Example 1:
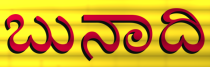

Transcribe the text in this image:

ಬುನಾದಿ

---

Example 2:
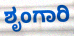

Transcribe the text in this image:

ಶೃಂಗಾರಿ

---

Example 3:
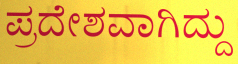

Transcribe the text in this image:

ಪ್ರದೇಶವಾಗಿದ್ದು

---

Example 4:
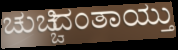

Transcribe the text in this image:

ಚುಚ್ಚಿದಂತಾಯ್ತು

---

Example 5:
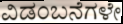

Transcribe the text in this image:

ವಿಡಂಬನೆಗಳೇ